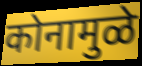
कोनामुळे